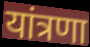
यांत्रणा